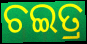
ଚଇତ୍ର